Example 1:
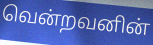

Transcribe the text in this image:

வென்றவனின்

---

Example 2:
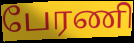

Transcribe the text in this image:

பேரணி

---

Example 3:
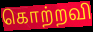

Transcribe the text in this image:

கொற்றவி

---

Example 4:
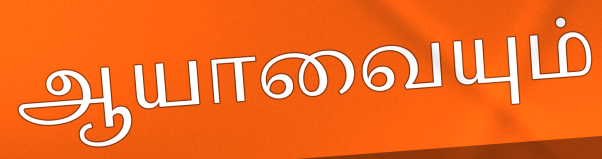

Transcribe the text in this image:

ஆயாவையும்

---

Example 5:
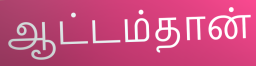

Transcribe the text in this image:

ஆட்டம்தான்